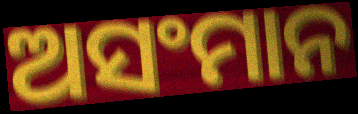
ଅସଂମାନ